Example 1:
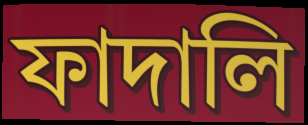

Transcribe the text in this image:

ফাদালি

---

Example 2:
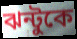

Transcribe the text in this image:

ঝন্টুকে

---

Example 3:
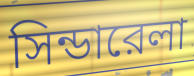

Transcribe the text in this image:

সিন্ডারেলা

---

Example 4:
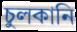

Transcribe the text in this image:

চুলকানি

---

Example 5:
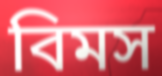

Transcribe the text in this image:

বিমস